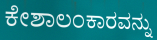
ಕೇಶಾಲಂಕಾರವನ್ನು